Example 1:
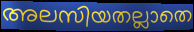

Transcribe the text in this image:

അലസിയതല്ലാതെ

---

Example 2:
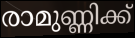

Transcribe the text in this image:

രാമുണ്ണിക്ക്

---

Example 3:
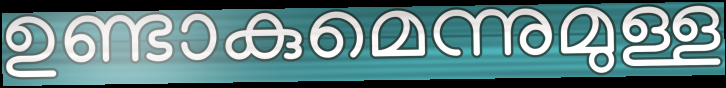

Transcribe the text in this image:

ഉണ്ടാകുമെന്നുമുള്ള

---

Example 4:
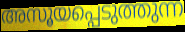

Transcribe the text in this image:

അസൂയപ്പെടുത്തുന്ന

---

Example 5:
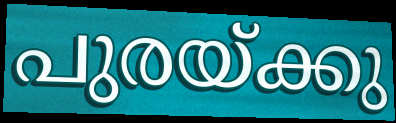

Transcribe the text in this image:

പുരയ്ക്കു